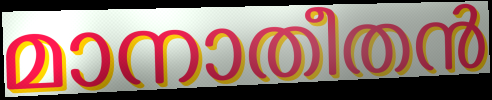
മാനാതീതൻ